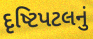
દૃષ્ટિપટલનું